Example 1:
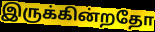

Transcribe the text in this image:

இருக்கின்றதோ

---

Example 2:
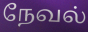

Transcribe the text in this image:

நேவல்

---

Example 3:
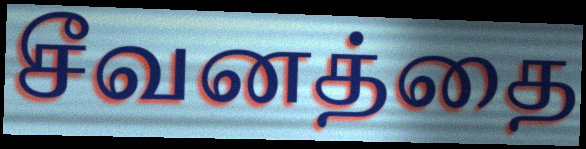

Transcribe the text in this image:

சீவனத்தை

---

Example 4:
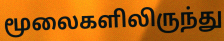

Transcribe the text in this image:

மூலைகளிலிருந்து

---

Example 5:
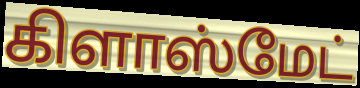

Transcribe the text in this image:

கிளாஸ்மேட்